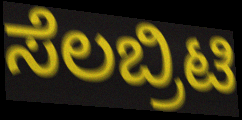
ಸೆಲಬ್ರಿಟಿ